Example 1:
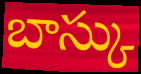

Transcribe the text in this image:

బాస్కు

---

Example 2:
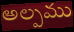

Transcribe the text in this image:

అల్పము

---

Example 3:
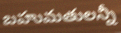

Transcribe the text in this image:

బహుమతులన్నీ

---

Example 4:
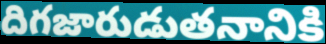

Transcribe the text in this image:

దిగజారుడుతనానికి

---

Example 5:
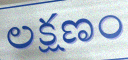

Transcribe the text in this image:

లక్షణం